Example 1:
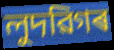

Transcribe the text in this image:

লুদৱিগৰ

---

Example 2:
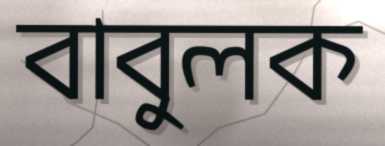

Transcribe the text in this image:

বাবুলক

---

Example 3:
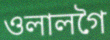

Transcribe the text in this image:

ওলালগৈ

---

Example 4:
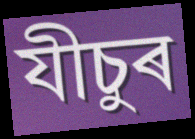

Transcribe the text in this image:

যীচুৰ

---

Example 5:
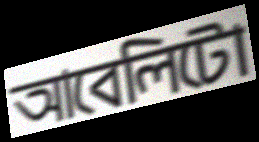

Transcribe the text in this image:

আবেলিটো